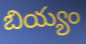
బియ్యం